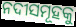
ନଦୀସମୂହକୁ